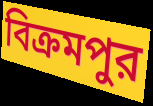
বিক্রমপুর